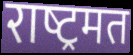
राष्ट्रमत